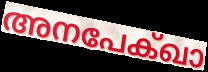
അനപേക്ഖാ